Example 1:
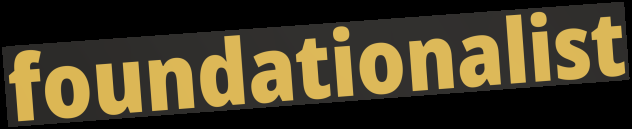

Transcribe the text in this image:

foundationalist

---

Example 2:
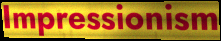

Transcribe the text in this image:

Impressionism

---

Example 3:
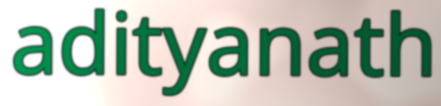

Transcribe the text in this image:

adityanath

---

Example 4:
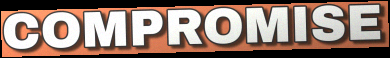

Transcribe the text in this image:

COMPROMISE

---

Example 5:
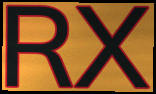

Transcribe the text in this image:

RX